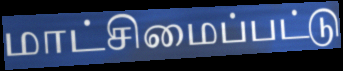
மாட்சிமைப்பட்டு